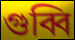
গুব্বি